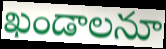
ఖండాలనూ